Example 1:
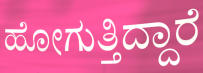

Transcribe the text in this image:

ಹೋಗುತ್ತಿದ್ದಾರೆ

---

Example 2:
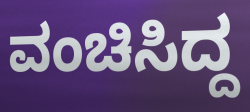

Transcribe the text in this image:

ವಂಚಿಸಿದ್ದ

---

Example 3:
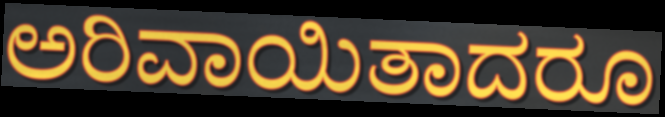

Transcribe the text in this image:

ಅರಿವಾಯಿತಾದರೂ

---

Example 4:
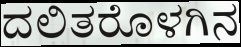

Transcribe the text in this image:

ದಲಿತರೊಳಗಿನ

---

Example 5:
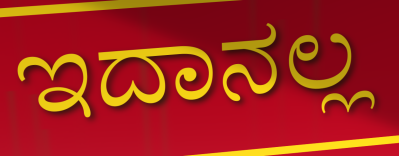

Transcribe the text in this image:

ಇದಾನಲ್ಲ